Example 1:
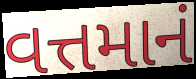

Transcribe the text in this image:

વત્તમાનં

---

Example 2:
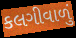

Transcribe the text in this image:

કલગીવાળું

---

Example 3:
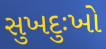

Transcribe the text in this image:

સુખદુઃખો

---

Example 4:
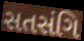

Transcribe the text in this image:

સતસંગિ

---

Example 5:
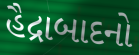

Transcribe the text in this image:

હૈદ્રાબાદનો